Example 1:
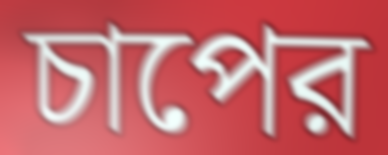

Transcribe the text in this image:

চাপের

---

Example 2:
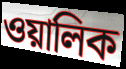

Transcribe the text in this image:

ওয়ালিক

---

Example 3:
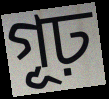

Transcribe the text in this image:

গূঢ়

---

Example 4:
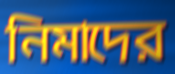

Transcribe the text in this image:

নিমাদের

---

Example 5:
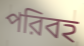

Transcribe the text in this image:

পরিবহ